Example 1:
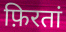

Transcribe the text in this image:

फ़िरतां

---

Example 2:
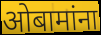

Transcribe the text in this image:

ओबामांना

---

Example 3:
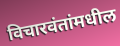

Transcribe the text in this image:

विचारवंतांमधील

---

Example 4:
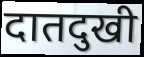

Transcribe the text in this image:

दातदुखी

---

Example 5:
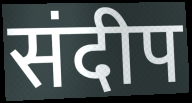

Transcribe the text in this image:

संदीप